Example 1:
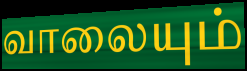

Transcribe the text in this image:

வாலையும்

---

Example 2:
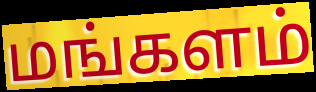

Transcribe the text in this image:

மங்களம்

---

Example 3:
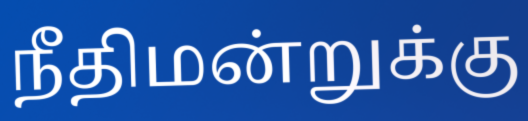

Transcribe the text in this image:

நீதிமன்றுக்கு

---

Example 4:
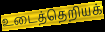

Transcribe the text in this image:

உடைத்தெறியக்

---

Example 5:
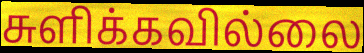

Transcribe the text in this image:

சுளிக்கவில்லை